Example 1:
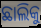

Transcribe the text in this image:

ଛାଲିକୁ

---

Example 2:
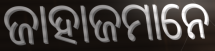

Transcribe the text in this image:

ଜାହାଜମାନେ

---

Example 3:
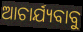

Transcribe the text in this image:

ଆଚାର୍ଯ୍ୟବାବୁ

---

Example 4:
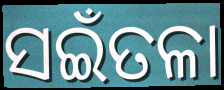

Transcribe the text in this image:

ସଇଁତଳା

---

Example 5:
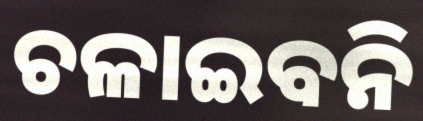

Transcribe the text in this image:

ଚଳାଇବନି